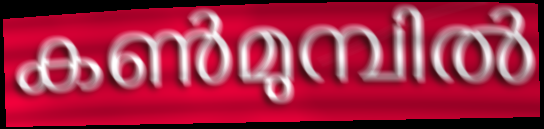
കൺമുമ്പിൽ